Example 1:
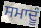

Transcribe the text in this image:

ਸਮਾਦੂੰ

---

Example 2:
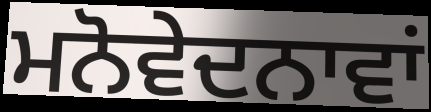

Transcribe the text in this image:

ਮਨੋਵੇਦਨਾਵਾਂ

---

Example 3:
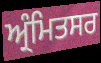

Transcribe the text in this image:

ਅ੍ਰੰਮਿਤਸਰ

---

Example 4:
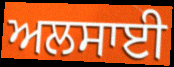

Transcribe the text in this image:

ਅਲਸਾਈ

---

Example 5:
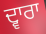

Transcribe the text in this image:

ਦ੍ਵਾਰਾ